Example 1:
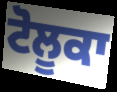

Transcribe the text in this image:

ਟੋਲੂਕਾ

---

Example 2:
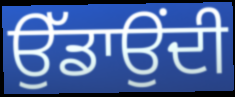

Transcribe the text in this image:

ਉੱਡਾਉਂਦੀ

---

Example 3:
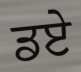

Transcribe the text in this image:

ਡਏ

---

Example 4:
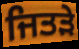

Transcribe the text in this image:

ਜਿਤੜੇ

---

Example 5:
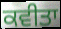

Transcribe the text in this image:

ਕਵੀਤਾ